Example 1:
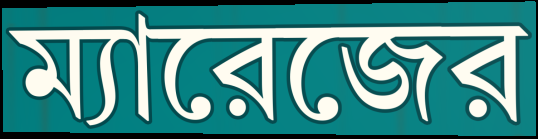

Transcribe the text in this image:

ম্যারেজের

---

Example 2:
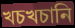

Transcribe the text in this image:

খচখচানি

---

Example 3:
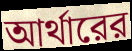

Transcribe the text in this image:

আর্থারের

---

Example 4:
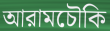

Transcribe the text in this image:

আরামচৌকি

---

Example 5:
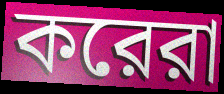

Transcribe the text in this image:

করেরা